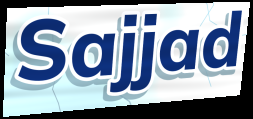
Sajjad